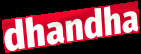
dhandha